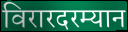
विरारदरम्यान